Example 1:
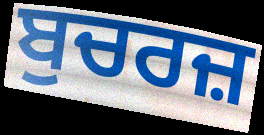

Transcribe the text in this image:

ਬੁਚਰਜ਼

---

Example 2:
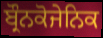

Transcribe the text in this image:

ਬ੍ਰੌਨਕੋਜੇਨਿਕ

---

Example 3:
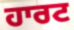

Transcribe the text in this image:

ਹਾਰਟ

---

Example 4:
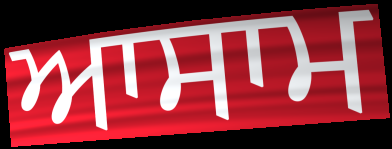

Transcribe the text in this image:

ਆਸਾਮ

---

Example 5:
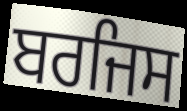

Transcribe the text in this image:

ਬਰਜਿਸ